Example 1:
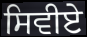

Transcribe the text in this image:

ਸਿਵੀਏ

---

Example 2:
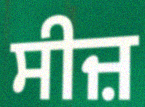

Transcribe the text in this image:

ਸੀਜ਼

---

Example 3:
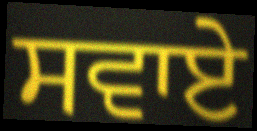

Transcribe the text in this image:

ਸਵਾਏ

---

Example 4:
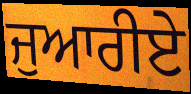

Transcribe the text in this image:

ਜੁਆਰੀਏ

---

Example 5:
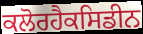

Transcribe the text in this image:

ਕਲੋਰਹੈਕਸਿਡੀਨ